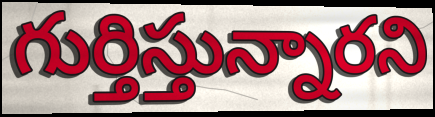
గుర్తిస్తున్నారని